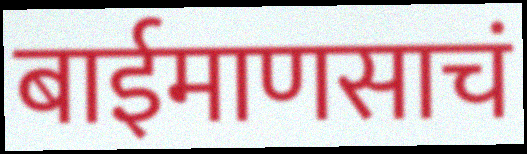
बाईमाणसाचं